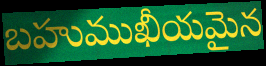
బహుముఖీయమైన